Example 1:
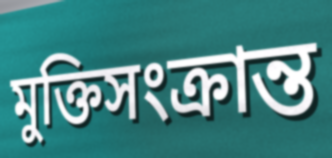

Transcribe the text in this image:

মুক্তিসংক্রান্ত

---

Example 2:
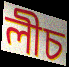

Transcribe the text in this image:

লীচ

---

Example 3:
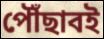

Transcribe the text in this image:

পৌঁছাবই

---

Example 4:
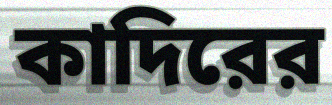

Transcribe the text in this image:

কাদিরের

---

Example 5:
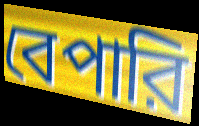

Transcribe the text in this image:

বেপারি